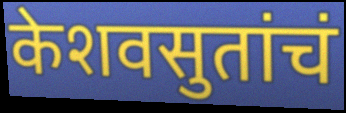
केशवसुतांचं